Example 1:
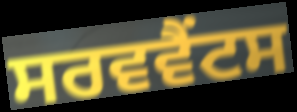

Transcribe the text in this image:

ਸਰਵਵੈਂਟਸ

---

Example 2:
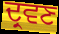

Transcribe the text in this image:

ਦ੍ਰਵਣ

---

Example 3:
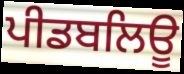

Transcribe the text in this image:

ਪੀਡਬਲਿਊ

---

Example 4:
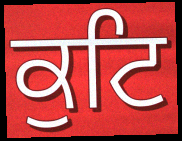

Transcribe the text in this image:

ਕੁਟਿ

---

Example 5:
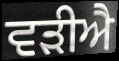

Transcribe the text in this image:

ਵੜੀਐ